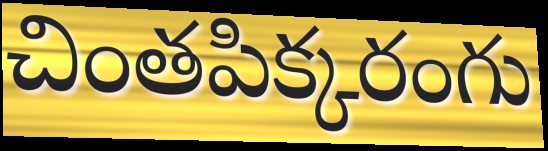
చింతపిక్కరంగు